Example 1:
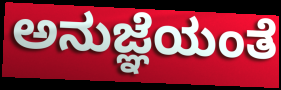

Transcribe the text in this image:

ಅನುಜ್ಞೆಯಂತೆ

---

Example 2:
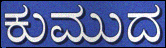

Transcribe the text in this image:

ಕುಮುದ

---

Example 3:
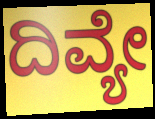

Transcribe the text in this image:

ದಿವ್ಯೇ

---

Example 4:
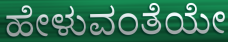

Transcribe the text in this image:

ಹೇಳುವಂತೆಯೇ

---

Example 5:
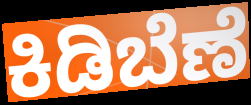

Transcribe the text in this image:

ಕಿಡಿಬೆಣೆ